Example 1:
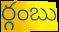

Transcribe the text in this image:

ర్గంబు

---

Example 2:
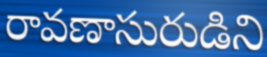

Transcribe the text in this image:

రావణాసురుడిని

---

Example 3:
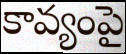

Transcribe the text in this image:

కావ్యంపై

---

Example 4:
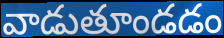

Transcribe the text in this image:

వాడుతూండడం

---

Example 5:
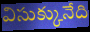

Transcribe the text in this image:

విసుక్కునేది